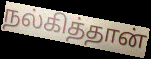
நல்கித்தான்